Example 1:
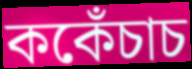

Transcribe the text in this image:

ককেঁচাচ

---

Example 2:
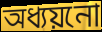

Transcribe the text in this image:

অধ্যয়নো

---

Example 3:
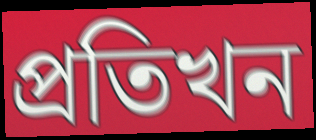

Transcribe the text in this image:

প্ৰতিখন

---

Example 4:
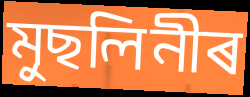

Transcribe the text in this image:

মুছলিনীৰ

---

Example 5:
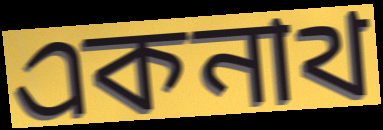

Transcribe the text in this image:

একনাথ